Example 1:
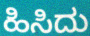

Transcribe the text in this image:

ಹಿಸಿದು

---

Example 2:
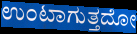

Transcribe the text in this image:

ಉಂಟಾಗುತ್ತದೋ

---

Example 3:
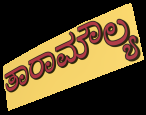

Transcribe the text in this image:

ತಾರಾಮೌಲ್ಯ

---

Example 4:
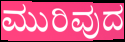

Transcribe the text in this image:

ಮುರಿವುದ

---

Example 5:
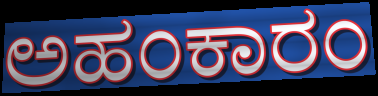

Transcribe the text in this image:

ಅಹಂಕಾರಂ